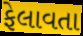
ફેલાવતા